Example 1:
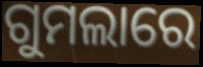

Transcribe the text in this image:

ଗୁମଲାରେ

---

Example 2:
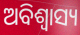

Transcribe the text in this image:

ଅବିଶ୍ଵାସ୍ୟ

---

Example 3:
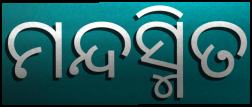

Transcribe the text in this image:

ମନ୍ଦସ୍ମିତ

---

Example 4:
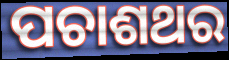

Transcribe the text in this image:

ପଚାଶଥର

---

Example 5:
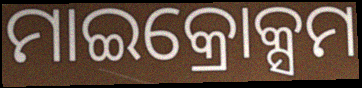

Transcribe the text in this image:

ମାଇକ୍ରୋକ୍ସମ